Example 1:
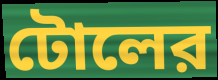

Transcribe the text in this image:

টোলের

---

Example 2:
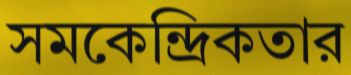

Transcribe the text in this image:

সমকেন্দ্রিকতার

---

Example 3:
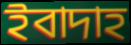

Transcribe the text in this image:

ইবাদাহ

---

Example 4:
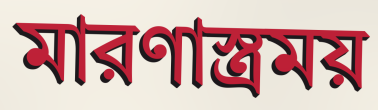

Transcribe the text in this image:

মারণাস্ত্রময়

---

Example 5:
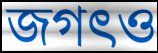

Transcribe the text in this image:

জগৎও